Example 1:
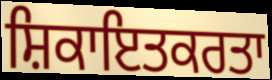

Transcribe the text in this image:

ਸ਼ਿਕਾਇਤਕਰਤਾ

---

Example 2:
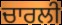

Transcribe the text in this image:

ਚਾਰਲੀ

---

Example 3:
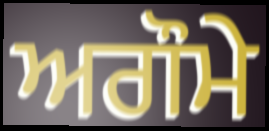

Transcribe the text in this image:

ਅਗੌਮੇ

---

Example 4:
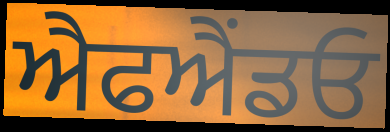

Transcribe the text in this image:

ਐਫਐਂਡਓ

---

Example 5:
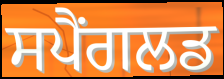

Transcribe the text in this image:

ਸਪੈਂਗਲਡ